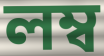
লম্ব